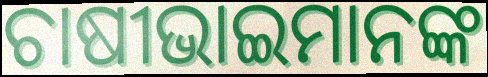
ଚାଷୀଭାଇମାନଙ୍କ